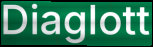
Diaglott